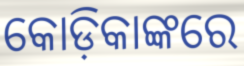
କୋଡ଼ିକାଙ୍କରେ